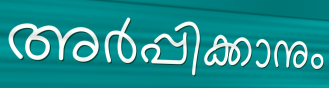
അർപ്പിക്കാനും